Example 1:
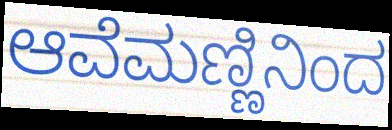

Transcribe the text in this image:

ಆವೆಮಣ್ಣಿನಿಂದ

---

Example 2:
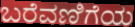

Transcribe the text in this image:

ಬರೆವಣಿಗೆಯ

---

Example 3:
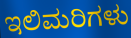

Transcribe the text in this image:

ಇಲಿಮರಿಗಳು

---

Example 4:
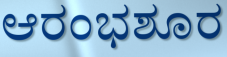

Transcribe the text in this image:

ಆರಂಭಶೂರ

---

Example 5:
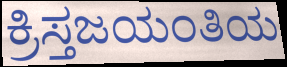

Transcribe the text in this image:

ಕ್ರಿಸ್ತಜಯಂತಿಯ